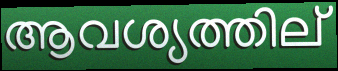
ആവശ്യത്തില്